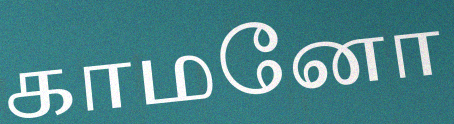
காமனோ